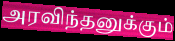
அரவிந்தனுக்கும்